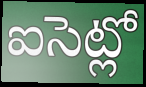
ఐసెట్లో